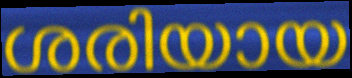
ശരിയായ